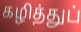
கழித்துப்